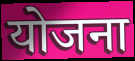
योजना